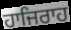
ਹਾਜਿਰਾਹ